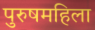
पुरुषमहिला